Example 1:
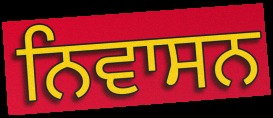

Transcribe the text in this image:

ਨਿਵਾਸਨ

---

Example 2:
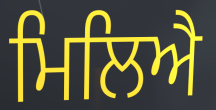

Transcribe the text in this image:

ਮਿਲਿਐ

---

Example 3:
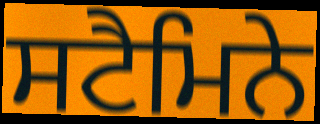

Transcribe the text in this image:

ਸਟੈਮਿਨੇ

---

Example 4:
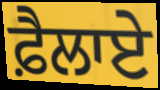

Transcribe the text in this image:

ਫ਼ੈਲਾਏ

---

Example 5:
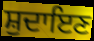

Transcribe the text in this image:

ਸ਼ੁਦਾਇਣ